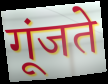
गूंजते